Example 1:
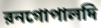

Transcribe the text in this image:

রনগোপালদি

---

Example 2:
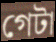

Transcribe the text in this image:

গেটা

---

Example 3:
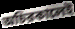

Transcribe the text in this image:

অচিরকালেই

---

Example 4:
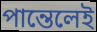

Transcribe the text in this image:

পান্তেলেই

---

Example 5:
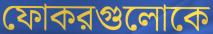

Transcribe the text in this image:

ফোকরগুলোকে